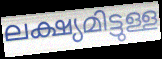
ലക്ഷ്യമിട്ടുള്ള